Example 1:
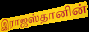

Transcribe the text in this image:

இராஜஸ்தானின்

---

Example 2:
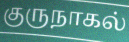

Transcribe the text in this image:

குருநாகல்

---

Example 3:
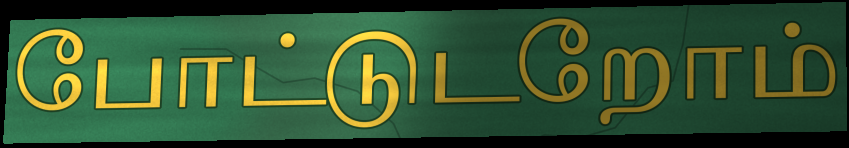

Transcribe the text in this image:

போட்டுடறோம்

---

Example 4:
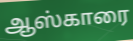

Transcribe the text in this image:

ஆஸ்காரை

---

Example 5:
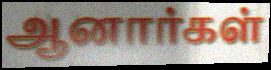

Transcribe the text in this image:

ஆனார்கள்